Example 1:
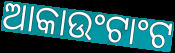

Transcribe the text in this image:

ଆକାଉଂଟାଂଟ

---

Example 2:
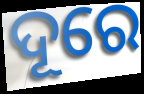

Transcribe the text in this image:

ଦୂରେ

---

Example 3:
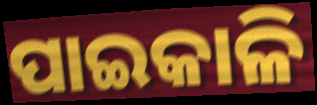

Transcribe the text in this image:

ପାଇକାଳି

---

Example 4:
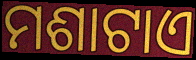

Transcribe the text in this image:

ମଶାଟାଏ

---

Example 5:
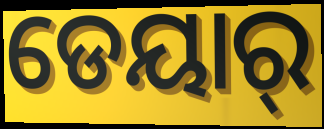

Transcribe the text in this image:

ଡେୟାର୍